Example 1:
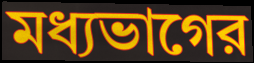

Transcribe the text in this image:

মধ্যভাগের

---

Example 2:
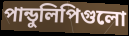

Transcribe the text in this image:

পান্ডুলিপিগুলো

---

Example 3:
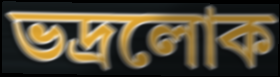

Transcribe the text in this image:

ভদ্রলোক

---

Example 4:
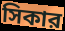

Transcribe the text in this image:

সিকার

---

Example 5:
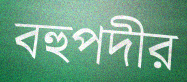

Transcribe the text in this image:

বহুপদীর